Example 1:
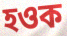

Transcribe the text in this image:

হওক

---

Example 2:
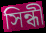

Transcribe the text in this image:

সিন্ধী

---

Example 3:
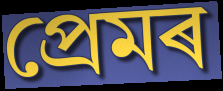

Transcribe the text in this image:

প্ৰেমৰ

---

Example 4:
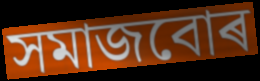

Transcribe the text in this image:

সমাজবোৰ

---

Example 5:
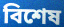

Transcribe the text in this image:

বিশেষ